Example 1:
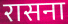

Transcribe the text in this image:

रासना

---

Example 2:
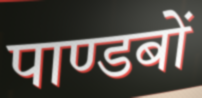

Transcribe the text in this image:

पाण्डबों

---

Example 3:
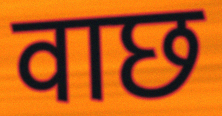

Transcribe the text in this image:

वाछ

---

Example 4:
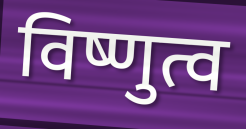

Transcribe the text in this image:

विष्णुत्व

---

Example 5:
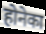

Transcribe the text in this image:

होनेका